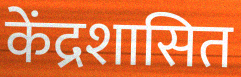
केंद्रशासित